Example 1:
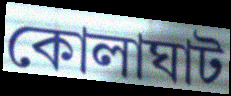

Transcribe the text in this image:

কোলাঘাট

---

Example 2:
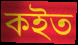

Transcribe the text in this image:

কইত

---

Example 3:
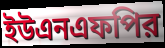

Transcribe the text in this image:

ইউএনএফপির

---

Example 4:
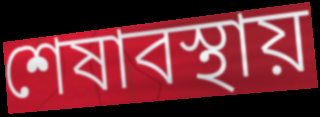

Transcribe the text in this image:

শেষাবস্থায়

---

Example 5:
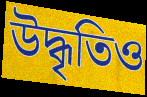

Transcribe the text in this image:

উদ্ধৃতিও